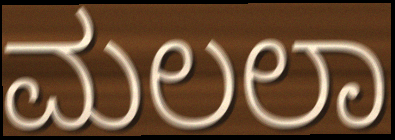
ಮಲಲಾ